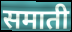
समाती